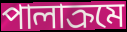
পালাক্রমে